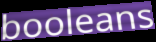
booleans